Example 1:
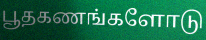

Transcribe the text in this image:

பூதகணங்களோடு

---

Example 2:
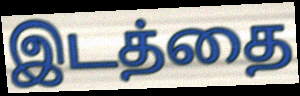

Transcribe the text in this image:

இடத்தை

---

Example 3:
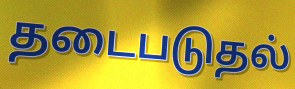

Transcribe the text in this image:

தடைபடுதல்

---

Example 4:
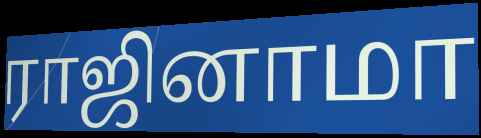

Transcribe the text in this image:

ராஜினாமா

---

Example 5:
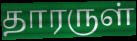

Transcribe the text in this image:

தாரருள்